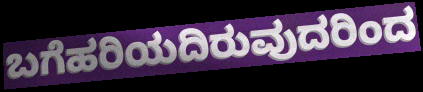
ಬಗೆಹರಿಯದಿರುವುದರಿಂದ